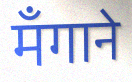
मँगाने